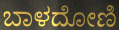
ಬಾಳದೋಣಿ